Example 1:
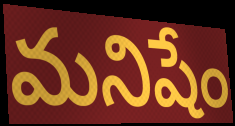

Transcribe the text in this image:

మనిషేం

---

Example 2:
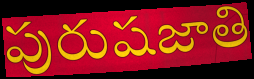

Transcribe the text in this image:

పురుషజాతి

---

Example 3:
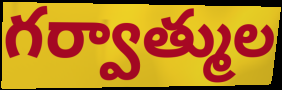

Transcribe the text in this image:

గర్వాత్ముల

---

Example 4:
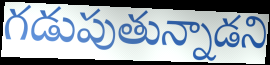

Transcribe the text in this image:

గడుపుతున్నాడని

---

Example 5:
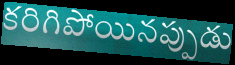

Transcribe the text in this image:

కరిగిపోయినప్పుడు